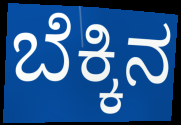
ಬೆಕ್ಕಿನ